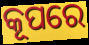
କୂପରେ